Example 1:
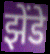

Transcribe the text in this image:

झेंडे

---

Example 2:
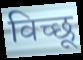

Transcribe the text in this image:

विच्छू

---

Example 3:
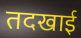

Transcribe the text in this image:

तदखाई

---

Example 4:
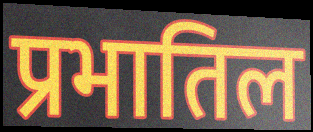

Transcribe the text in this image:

प्रभातिल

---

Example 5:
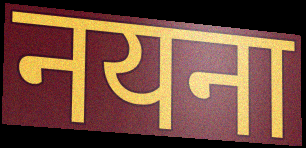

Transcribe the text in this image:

नयना